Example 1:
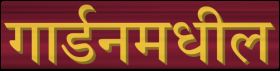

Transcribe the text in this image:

गार्डनमधील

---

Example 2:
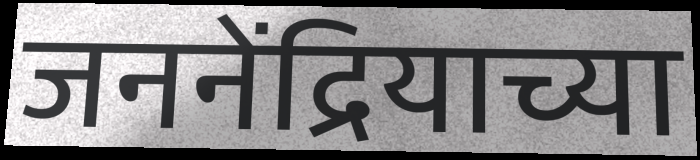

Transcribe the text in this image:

जननेंद्रियाच्या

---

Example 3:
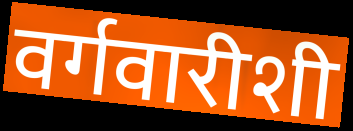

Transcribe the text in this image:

वर्गवारीशी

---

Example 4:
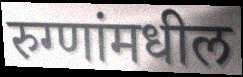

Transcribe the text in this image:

रुग्णांमधील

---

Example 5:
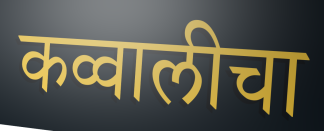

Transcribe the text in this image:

कव्वालीचा